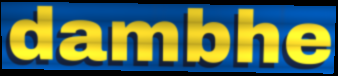
dambhe